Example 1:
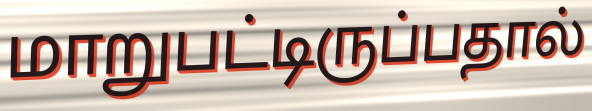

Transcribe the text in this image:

மாறுபட்டிருப்பதால்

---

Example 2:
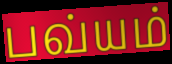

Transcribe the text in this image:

பவ்யம்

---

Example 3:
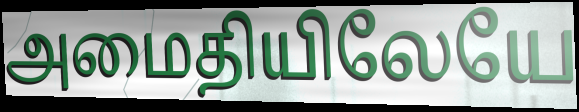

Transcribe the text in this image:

அமைதியிலேயே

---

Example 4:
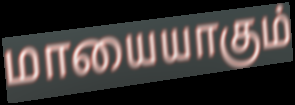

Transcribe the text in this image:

மாயையாகும்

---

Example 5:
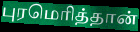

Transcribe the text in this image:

புரமெரித்தான்